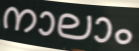
നാലാം